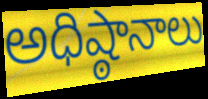
అధిష్ఠానాలు